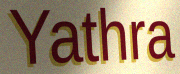
Yathra